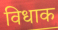
विधाक